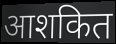
आशकित